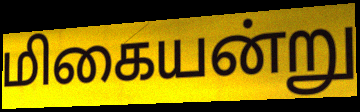
மிகையன்று